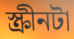
স্ক্রীনটা